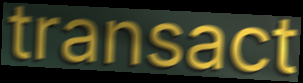
transact